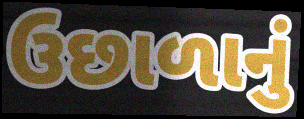
ઉછાળાનું